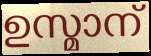
ഉസ്മാന്